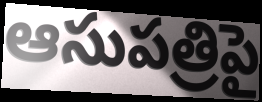
ఆసుపత్రిపై